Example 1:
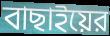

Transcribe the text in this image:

বাছাইয়ের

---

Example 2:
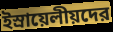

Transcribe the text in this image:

ইস্রায়েলীয়দের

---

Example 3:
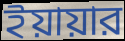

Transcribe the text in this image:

ইয়ায়ার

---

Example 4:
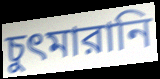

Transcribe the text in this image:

চুৎমারানি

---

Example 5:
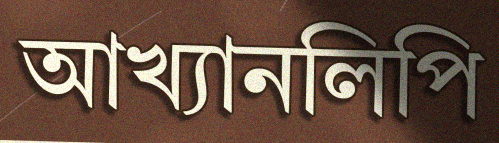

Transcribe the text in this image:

আখ্যানলিপি